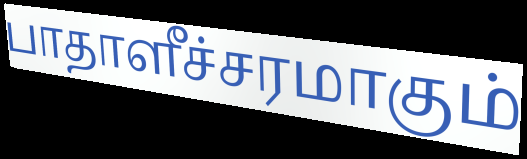
பாதாளீச்சரமாகும்